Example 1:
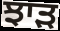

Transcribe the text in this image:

ਝਾੜ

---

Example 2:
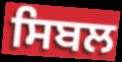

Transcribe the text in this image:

ਸਿਬਲ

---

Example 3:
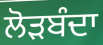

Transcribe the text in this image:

ਲੋੜਬੰਦਾ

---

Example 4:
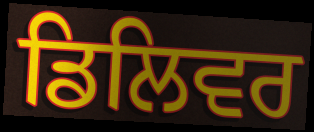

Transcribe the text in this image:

ਡਿਲਿਵਰ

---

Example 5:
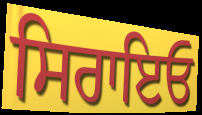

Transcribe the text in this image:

ਸਿਰਾਇਓ